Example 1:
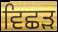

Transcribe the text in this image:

ਵਿਛਡ਼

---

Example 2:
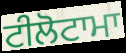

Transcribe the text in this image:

ਟੀਲੋਟਾਮਾ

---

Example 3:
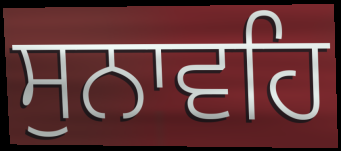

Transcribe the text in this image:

ਸੁਨਾਵਹਿ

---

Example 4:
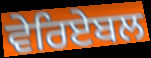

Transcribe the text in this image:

ਵੇਰਿਏਬਲ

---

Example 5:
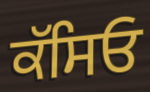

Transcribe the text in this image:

ਕੱਸਿਓ